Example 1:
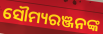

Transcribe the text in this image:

ସୌମ୍ୟରଞ୍ଜନଙ୍କ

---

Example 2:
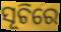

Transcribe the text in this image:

ସୂଚିରେ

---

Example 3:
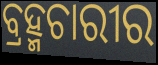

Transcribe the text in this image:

ବ୍ରହ୍ମଚାରୀର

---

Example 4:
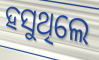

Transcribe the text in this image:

ହସୁଥିଲେ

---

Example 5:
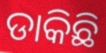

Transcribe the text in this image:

ଡାକିଛି